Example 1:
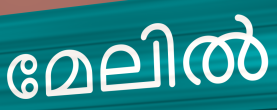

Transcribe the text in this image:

മേലിൽ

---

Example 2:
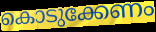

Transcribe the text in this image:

കൊടുക്കേണം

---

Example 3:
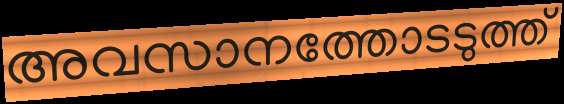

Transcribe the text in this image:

അവസാനത്തോടടുത്ത്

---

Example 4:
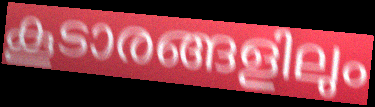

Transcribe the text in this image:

കൂടാരങ്ങളിലും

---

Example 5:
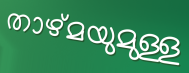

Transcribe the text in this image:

താഴ്മയുമുള്ള